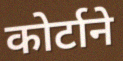
कोर्टाने